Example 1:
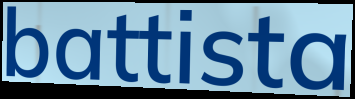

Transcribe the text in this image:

battista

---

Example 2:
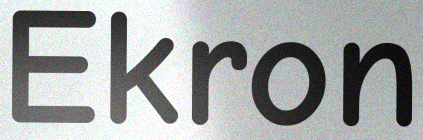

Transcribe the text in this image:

Ekron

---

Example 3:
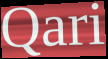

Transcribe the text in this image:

Qari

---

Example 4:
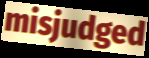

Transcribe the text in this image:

misjudged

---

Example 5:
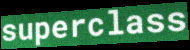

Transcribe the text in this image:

superclass